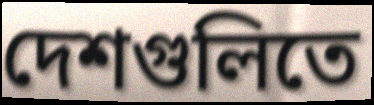
দেশগুলিতে